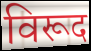
विरूद